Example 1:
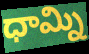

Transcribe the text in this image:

ధామ్ని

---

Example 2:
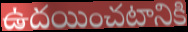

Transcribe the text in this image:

ఉదయించటానికి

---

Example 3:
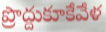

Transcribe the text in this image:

ప్రొద్దుకూకేవేళ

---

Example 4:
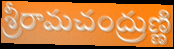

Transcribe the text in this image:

శ్రీరామచంద్రుణ్ణి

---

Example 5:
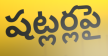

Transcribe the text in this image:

షట్లర్లపై